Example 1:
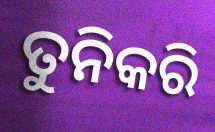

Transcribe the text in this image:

ତୁନିକରି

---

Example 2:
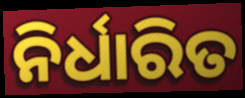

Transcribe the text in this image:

ନିର୍ଧାରିତ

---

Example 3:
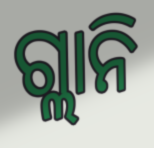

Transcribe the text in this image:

ଗ୍ଲାନି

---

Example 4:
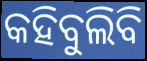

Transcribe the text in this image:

କହିବୁଲିବି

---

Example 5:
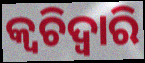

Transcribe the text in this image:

କ୍ଵଚିଦ୍ୱାରି